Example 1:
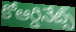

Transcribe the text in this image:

కోఆర్డినేట్స్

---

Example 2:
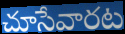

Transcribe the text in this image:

చూసేవారట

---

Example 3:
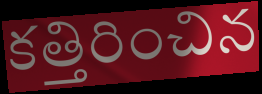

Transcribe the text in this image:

కత్తిరించిన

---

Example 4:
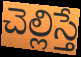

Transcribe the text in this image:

చెల్లిస్తే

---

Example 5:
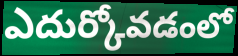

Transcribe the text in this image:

ఎదుర్కోవడంలో